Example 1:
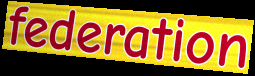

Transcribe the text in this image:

federation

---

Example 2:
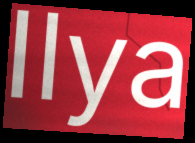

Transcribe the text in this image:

Ilya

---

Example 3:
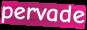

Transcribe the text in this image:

pervade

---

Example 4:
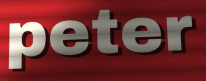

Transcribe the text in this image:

peter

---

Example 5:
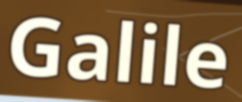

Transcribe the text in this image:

Galile